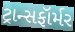
ટ્રાન્સફૉર્મર